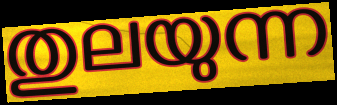
തുലയുന്ന